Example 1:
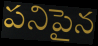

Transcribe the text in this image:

పనిపైన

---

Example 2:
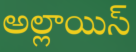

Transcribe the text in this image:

అల్లాయిస్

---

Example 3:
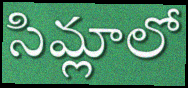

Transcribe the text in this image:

సిమ్లాలో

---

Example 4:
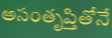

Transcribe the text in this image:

అసంతృప్తితోనే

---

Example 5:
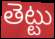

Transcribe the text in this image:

తెట్టు